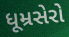
ધૂમ્રસેરો